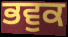
ਭਵੁਕ